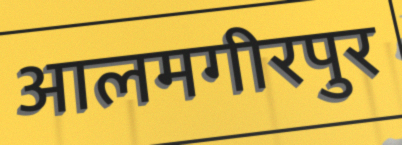
आलमगीरपुर